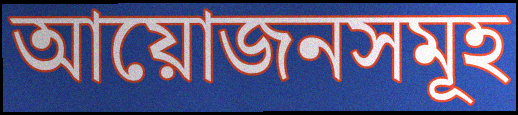
আয়োজনসমূহ